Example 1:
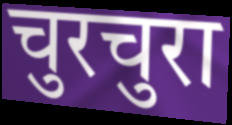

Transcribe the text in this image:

चुरचुरा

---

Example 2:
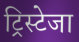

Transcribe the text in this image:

ट्रिस्टेजा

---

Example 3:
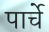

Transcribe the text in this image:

पार्चे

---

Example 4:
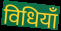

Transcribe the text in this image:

विधियाँ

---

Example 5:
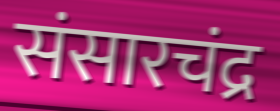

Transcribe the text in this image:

संसारचंद्र